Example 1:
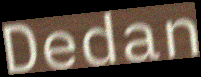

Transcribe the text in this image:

Dedan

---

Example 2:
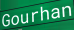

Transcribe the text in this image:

Gourhan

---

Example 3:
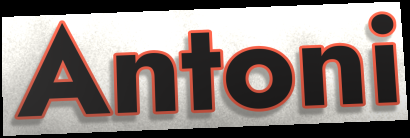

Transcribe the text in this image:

Antoni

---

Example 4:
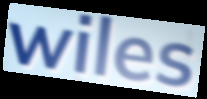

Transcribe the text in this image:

wiles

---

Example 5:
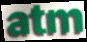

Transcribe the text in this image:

atm